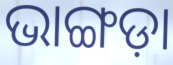
ଭାଙ୍ଗଡ଼ା